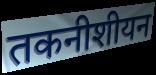
तकनीशीयन